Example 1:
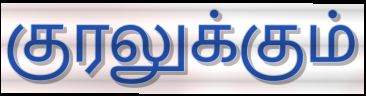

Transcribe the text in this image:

குரலுக்கும்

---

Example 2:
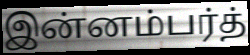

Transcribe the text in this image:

இன்னம்பர்த்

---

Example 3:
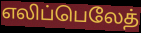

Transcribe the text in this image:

எலிப்பெலேத்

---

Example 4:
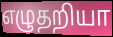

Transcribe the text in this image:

எழுதறியா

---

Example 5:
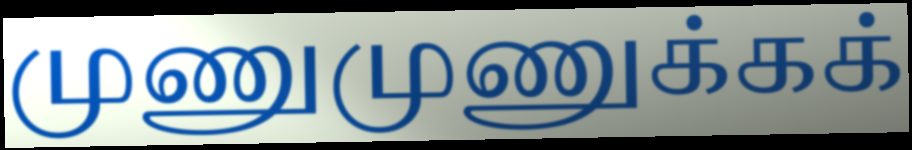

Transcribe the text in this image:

முணுமுணுக்கக்